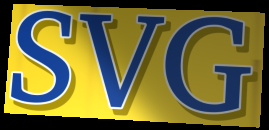
SVG